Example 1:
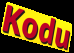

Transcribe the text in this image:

Kodu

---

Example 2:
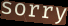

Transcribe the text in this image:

sorry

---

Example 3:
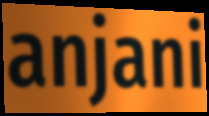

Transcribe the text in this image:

anjani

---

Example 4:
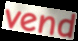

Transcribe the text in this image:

vend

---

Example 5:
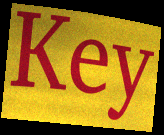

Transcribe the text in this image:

Key